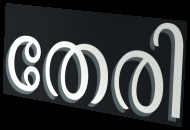
തേരി